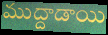
ముద్దాడాయి